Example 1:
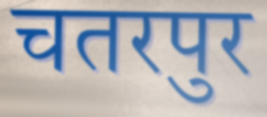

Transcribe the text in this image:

चतरपुर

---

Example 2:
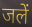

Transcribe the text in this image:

जलें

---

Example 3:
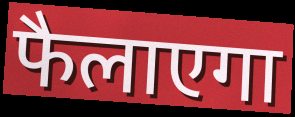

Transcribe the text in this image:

फैलाएगा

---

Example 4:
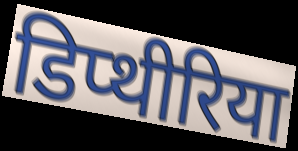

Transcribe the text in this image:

डिप्थीरिया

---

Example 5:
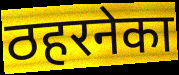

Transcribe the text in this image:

ठहरनेका